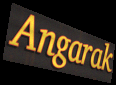
Angarak